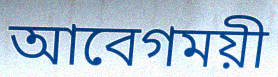
আবেগময়ী